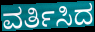
ವರ್ತಿಸಿದ